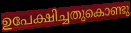
ഉപേക്ഷിച്ചതുകൊണ്ടു